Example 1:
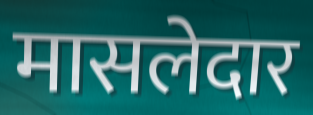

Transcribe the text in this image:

मासलेदार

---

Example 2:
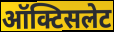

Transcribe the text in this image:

ऑक्टिसलेट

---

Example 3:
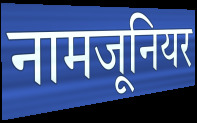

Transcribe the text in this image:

नामजूनियर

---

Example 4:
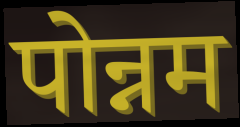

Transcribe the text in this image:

पोन्नम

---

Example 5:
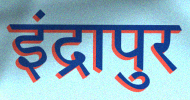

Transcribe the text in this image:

इंद्रापुर